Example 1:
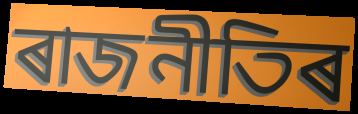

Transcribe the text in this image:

ৰাজনীতিৰ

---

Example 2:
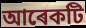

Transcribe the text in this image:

আৰেকটি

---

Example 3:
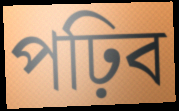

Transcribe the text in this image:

পঢ়িব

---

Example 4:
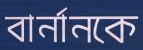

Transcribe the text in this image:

বাৰ্নানকে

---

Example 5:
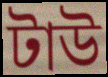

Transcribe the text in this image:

টাউ